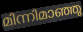
മിന്നിമാഞ്ഞു